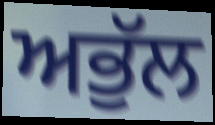
ਅਭੁੱਲ